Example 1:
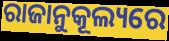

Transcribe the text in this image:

ରାଜାନୁକୂଲ୍ୟରେ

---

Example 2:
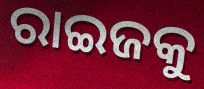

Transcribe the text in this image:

ରାଇଜକୁ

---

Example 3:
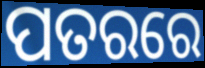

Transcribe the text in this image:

ପତରରେ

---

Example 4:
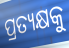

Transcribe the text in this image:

ପ୍ରତ୍ୟକ୍ଷକୁ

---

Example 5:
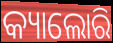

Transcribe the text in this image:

କ୍ୟାଲୋରି